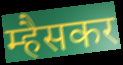
म्हैसकर